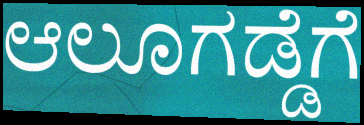
ಆಲೂಗಡ್ಡೆಗೆ